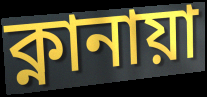
ক্নানায়া